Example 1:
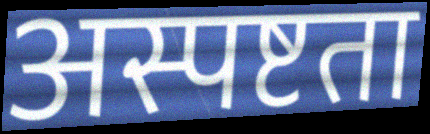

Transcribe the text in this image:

अस्पष्टता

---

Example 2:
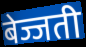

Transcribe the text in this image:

बेज्जती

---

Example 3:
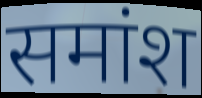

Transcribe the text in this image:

समांश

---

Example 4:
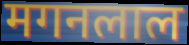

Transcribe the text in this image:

मगनलाल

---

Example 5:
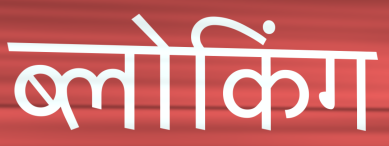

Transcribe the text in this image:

ब्लोकिंग